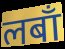
लबाँ